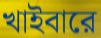
খাইবারে